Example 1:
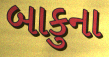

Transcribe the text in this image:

બાકુના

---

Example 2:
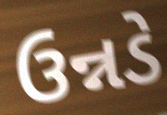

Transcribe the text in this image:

ઉન્નડે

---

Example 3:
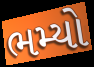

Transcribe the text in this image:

ભમ્યો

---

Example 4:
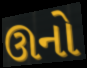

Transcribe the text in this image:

ઊનો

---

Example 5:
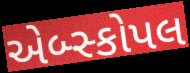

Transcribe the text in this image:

એબ્સ્કોપલ